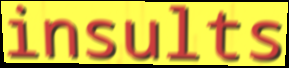
insults